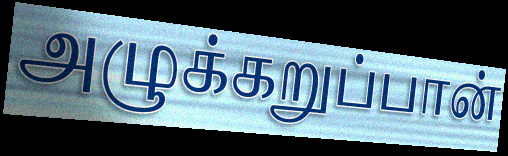
அழுக்கறுப்பான்